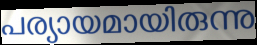
പര്യായമായിരുന്നു